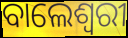
ବାଲେଶ୍ଵରୀ